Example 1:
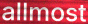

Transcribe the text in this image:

allmost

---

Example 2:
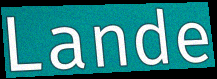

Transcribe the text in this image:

Lande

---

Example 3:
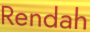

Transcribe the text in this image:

Rendah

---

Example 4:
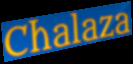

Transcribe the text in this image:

Chalaza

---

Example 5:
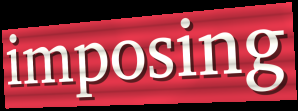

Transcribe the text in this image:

imposing